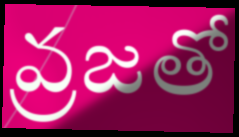
వ్రజతో